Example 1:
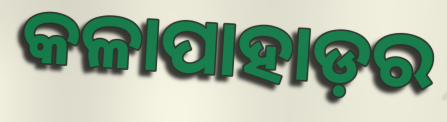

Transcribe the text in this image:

କଳାପାହାଡ଼ର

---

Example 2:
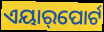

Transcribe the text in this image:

ଏୟାର୍‌ପୋର୍ଟ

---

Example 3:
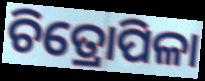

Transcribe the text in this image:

ଚିତ୍ରୋପିଳା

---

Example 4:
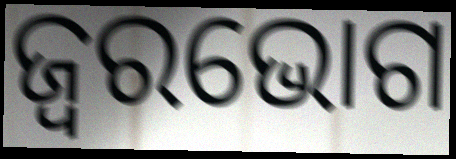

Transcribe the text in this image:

ଜ୍ୱରଭୋଗ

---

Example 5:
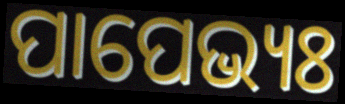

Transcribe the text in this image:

ପାପେଭ୍ୟଃ